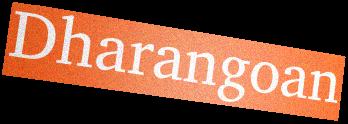
Dharangoan